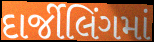
દાર્જીલિંગમાં